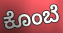
ಕೊಂಬೆ